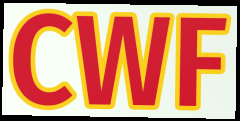
CWF